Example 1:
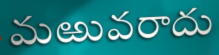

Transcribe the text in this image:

మఱువరాదు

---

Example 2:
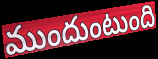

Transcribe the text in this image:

ముందుంటుంది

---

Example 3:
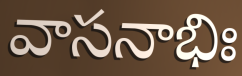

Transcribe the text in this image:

వాసనాభిః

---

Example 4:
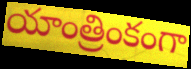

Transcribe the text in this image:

యాంత్రింకంగా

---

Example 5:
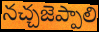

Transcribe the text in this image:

నచ్చజెప్పాలి